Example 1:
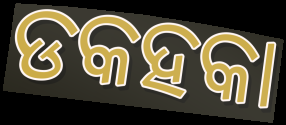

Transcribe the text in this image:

ଡକହକା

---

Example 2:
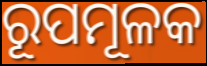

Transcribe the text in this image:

ରୂପମୂଳକ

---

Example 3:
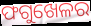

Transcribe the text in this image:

ଫଗୁଖେଳର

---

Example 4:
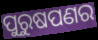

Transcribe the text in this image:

ପୁରୁଷପଣର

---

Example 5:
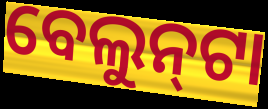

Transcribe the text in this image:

ବେଲୁନ୍‌ଟା